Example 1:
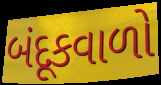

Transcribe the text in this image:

બંદૂકવાળો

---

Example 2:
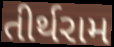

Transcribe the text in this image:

તીર્થરામ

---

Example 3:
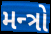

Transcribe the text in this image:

મન્ત્રો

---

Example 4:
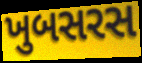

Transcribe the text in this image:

ખુબસરસ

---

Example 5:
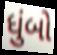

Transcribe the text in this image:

ધુંબો